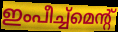
ഇംപീച്ച്മെന്റ്